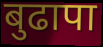
बुढापा